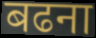
बढना